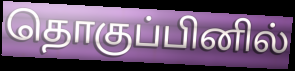
தொகுப்பினில்